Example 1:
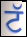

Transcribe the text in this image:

ਟੱ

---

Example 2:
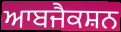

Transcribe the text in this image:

ਆਬਜੈਕਸ਼ਨ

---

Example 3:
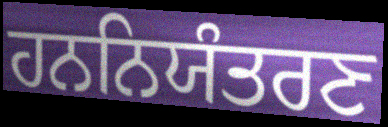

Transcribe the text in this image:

ਹਨਨਿਯੰਤਰਣ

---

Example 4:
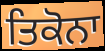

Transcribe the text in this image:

ਤਿਕੋਨਾ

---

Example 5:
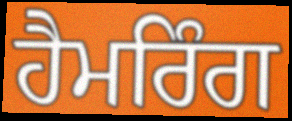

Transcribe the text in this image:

ਹੈਮਰਿੰਗ